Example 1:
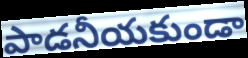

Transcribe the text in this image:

పాడనీయకుండా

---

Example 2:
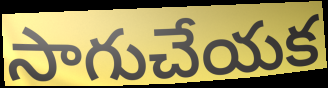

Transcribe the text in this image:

సాగుచేయక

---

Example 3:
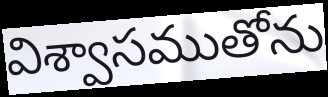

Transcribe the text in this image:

విశ్వాసముతోను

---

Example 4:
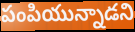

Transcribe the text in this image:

పంపియున్నాడని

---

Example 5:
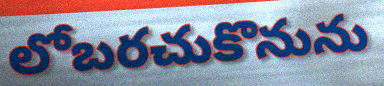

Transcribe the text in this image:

లోబరచుకొనును